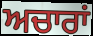
ਅਚਾਰਾਂ